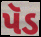
પૅડ